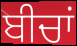
ਬੀਚਾਂ